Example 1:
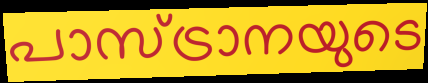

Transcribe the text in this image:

പാസ്ട്രാനയുടെ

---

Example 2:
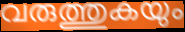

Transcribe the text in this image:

വരുത്തുകയും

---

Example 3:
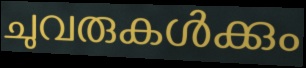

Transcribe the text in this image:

ചുവരുകൾക്കും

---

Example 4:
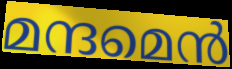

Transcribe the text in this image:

മന്ദമെൻ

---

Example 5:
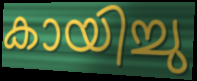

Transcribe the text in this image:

കായിച്ചു